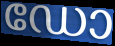
ഡോ